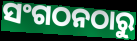
ସଂଗଠନଠାରୁ